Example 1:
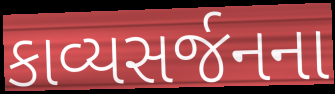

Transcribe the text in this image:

કાવ્યસર્જનના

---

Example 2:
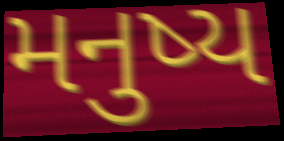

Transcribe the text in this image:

મનુષ્ય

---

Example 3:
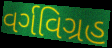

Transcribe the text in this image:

વર્ગવિગ્રહ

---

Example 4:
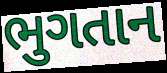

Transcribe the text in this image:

ભુગતાન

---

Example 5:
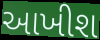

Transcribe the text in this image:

આખીશ